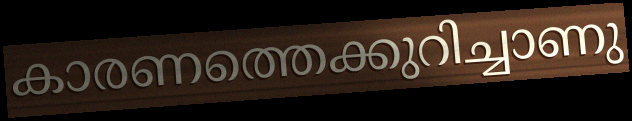
കാരണത്തെക്കുറിച്ചാണു